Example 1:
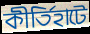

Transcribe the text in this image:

কীর্তিহাটে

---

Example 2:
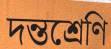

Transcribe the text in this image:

দন্তশ্রেণি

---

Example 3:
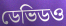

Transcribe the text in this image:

ডেভিডও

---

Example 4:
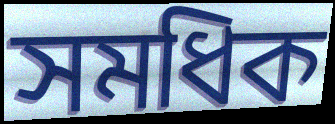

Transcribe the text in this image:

সমধিক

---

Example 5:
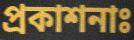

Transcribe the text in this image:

প্রকাশনাঃ